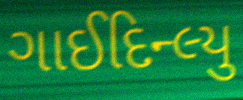
ગાઈદિન્લ્યુ